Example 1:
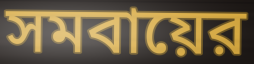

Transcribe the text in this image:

সমবায়ের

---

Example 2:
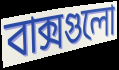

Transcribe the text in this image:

বাক্সগুলো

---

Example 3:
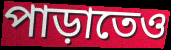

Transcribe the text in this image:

পাড়াতেও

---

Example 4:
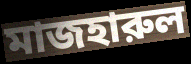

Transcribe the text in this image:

মাজহারুল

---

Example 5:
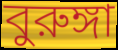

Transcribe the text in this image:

বুরুঙ্গা